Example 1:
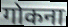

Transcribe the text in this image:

गोकना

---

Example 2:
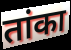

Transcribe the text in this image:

तांका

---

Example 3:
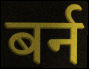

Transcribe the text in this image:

बर्न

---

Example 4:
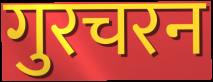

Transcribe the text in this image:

गुरचरन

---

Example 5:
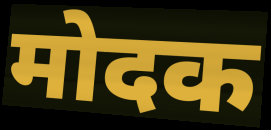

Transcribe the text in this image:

मोदक